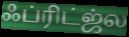
ஃப்ரிட்ஜ்ல